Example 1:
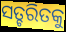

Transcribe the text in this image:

ସତ୍ଚରିତକୁ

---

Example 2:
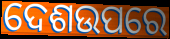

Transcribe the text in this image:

ଦେଶଉପରେ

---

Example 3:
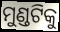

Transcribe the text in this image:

ମୁଣ୍ଡଟିକୁ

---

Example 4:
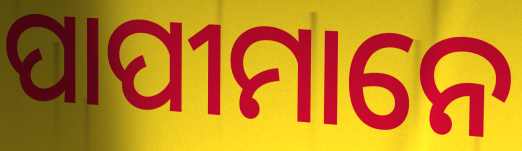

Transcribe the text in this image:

ପାପୀମାନେ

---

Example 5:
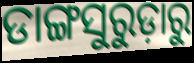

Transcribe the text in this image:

ଡାଙ୍ଗସୁରୁଡ଼ାରୁ